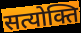
सत्योक्ति